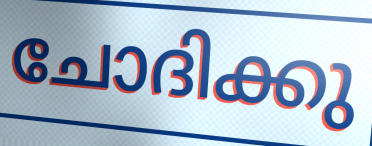
ചോദിക്കു